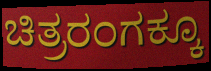
ಚಿತ್ರರಂಗಕ್ಕೂ